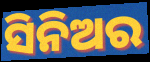
ସିନିଅର